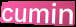
cumin